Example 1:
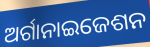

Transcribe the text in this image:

ଅର୍ଗାନାଇଜେଶନ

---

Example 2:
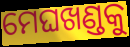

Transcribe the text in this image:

ମେଘଖଣ୍ଡକୁ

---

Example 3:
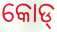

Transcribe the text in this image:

କୋଡ୍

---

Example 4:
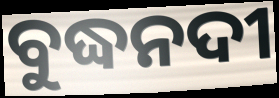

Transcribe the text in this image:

ବୁଦ୍ଧନଦୀ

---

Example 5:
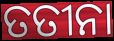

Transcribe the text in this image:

ତତୀନା